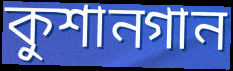
কুশানগান